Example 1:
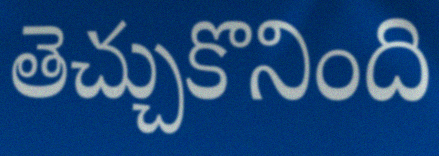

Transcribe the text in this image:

తెచ్చుకొనింది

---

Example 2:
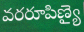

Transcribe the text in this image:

వరరూపిణ్యై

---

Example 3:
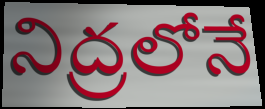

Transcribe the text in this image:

నిద్రలోనే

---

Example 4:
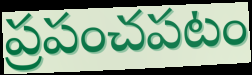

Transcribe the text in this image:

ప్రపంచపటం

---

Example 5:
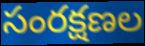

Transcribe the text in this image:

సంరక్షణల